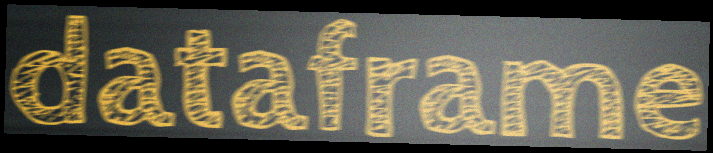
dataframe